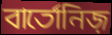
বার্তোনিজ়